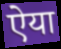
ऐया